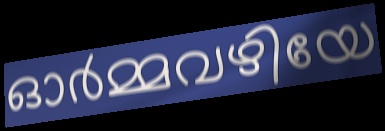
ഓർമ്മവഴിയേ